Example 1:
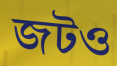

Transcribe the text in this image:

জটও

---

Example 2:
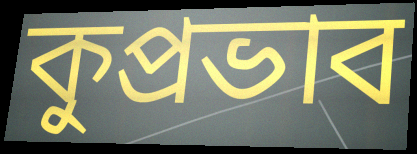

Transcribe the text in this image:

কুপ্রভাব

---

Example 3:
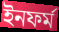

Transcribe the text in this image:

ইনফর্ম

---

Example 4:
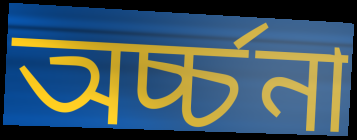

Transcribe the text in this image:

অর্চ্চনা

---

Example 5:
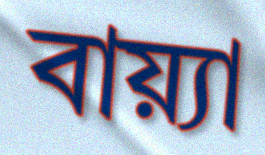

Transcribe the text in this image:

বায়্যা